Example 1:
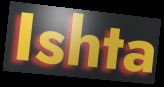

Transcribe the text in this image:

Ishta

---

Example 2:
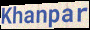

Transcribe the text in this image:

Khanpar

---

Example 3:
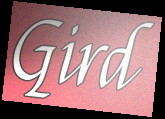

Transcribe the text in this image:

Gird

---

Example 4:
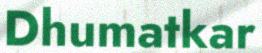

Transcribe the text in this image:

Dhumatkar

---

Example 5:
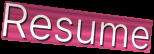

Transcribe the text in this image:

Resume